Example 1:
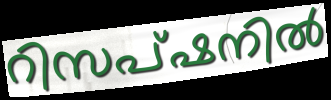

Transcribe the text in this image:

റിസപ്ഷനിൽ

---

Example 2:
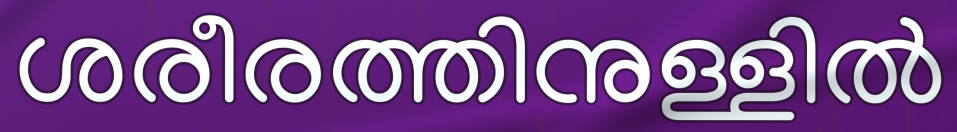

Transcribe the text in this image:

ശരീരത്തിനുള്ളിൽ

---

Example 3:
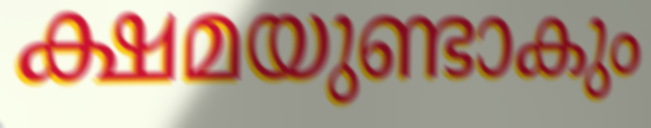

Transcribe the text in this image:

ക്ഷമയുണ്ടാകും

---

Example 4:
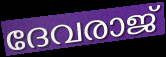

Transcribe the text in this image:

ദേവരാജ്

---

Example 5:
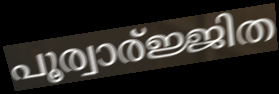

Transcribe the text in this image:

പൂര്വാര്ജ്ജിത